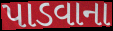
પાડવાના